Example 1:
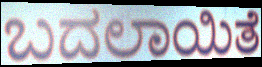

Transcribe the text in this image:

ಬದಲಾಯಿತೆ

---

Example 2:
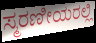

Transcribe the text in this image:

ಸ್ಮರಣೀಯರಲ್ಲಿ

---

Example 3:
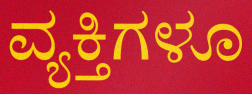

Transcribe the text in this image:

ವ್ಯಕ್ತಿಗಳೂ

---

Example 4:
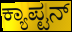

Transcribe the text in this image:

ಕ್ಯಾಪ್ಟನ್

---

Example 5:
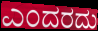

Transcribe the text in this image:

ಎಂದರದು